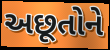
અછૂતોને